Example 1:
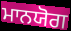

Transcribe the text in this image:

ਮਾਨਯੋਗ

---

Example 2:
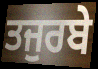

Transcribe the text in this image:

ਤਜੁਰਬੇ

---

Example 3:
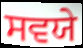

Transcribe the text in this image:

ਸਵਯੇ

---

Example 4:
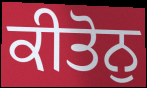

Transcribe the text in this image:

ਕੀਤੋਨੁ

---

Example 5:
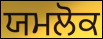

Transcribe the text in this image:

ਯਮਲੋਕ